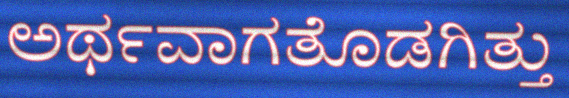
ಅರ್ಥವಾಗತೊಡಗಿತ್ತು